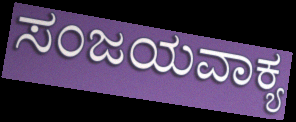
ಸಂಜಯವಾಕ್ಯ